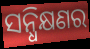
ସନ୍ଧିକ୍ଷଣର